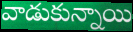
వాడుకున్నాయి